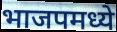
भाजपमध्ये